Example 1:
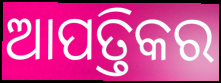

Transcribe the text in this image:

ଆପତ୍ତିକର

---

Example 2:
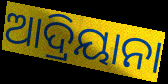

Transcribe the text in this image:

ଆଦ୍ରିୟାନା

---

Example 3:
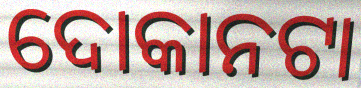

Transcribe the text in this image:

ଦୋକାନଟା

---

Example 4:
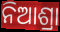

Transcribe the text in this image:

ନିଆଶ୍ରା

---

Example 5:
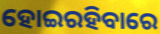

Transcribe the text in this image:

ହୋଇରହିବାରେ